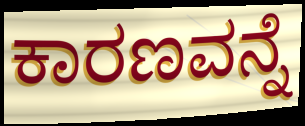
ಕಾರಣವನ್ನೆ